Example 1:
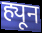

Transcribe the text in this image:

ह्यून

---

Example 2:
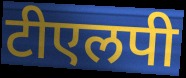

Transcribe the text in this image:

टीएलपी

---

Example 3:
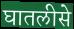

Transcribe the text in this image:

घातलीसे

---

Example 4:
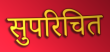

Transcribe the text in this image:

सुपरिचित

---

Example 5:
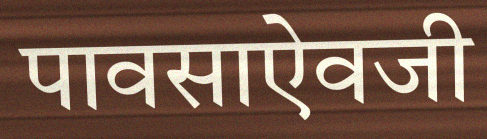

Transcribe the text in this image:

पावसाऐवजी